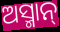
ଅସ୍ମାନ୍